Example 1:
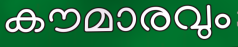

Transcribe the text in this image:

കൗമാരവും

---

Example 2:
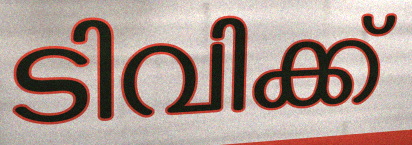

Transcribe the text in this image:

ടിവിക്ക്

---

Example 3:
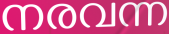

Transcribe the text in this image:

നരവന്ന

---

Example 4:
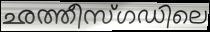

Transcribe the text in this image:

ഛത്തീസ്ഗഡിലെ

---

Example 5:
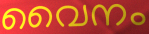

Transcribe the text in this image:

വൈനം